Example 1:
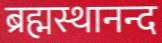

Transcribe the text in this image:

ब्रह्मस्थानन्द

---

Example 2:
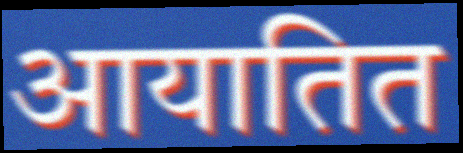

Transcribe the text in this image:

आयातित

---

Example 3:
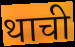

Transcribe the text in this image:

थाची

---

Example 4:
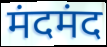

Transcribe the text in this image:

मंदमंद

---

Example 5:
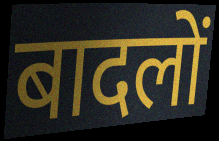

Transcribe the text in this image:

बादलों